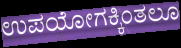
ಉಪಯೋಗಕ್ಕಿಂತಲೂ